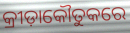
କ୍ରୀଡ଼ାକୌତୁକରେ